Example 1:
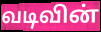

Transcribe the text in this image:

வடிவின்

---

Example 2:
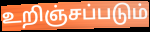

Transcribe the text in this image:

உறிஞ்சப்படும்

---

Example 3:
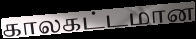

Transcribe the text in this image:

காலகட்டமான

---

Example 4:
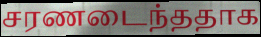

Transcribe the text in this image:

சரணடைந்ததாக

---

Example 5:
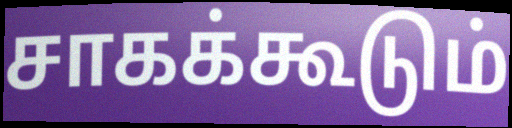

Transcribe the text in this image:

சாகக்கூடும்